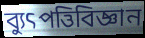
ব্যুৎপত্তিবিজ্ঞান